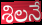
శిలనే